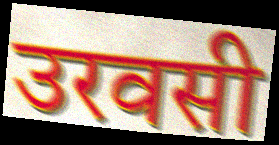
उरवसी